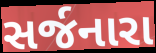
સર્જનારા